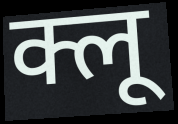
क्लू